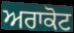
ਅਰਾਕੋਟ